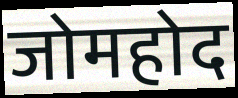
जोमहोद